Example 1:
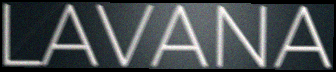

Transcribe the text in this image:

LAVANA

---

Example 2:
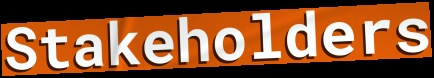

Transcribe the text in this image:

Stakeholders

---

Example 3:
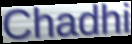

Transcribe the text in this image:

Chadhi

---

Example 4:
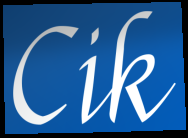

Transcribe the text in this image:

Cik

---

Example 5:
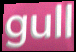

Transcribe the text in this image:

gull